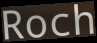
Roch